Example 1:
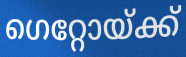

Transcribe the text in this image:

ഗെറ്റോയ്ക്ക്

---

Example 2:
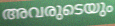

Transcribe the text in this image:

അവരുടെയും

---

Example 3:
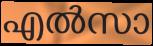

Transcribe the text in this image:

എൽസാ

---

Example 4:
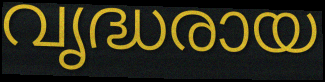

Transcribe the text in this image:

വൃദ്ധരായ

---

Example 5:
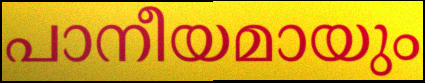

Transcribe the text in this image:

പാനീയമായും